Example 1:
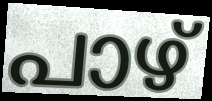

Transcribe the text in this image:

പാഴ്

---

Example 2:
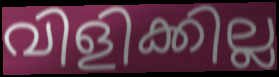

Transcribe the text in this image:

വിളിക്കില്ല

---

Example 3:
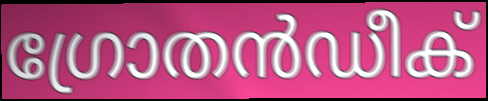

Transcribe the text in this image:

ഗ്രോതൻഡീക്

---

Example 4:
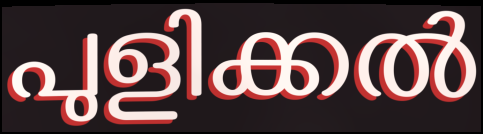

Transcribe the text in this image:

പുളിക്കൽ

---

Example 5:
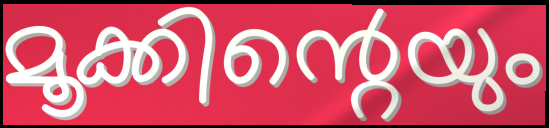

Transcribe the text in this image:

മൂക്കിന്റെയും